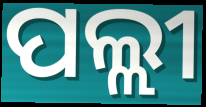
ପଲ୍ଲୀ